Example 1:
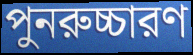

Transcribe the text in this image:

পুনরুচ্চারণ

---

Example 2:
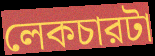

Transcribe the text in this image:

লেকচারটা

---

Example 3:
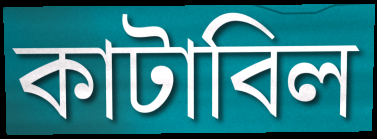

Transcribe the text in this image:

কাটাবিল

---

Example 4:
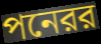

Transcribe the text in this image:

পনেরর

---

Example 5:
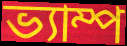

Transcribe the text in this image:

ভ্যাম্প